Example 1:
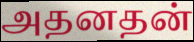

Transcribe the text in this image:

அதனதன்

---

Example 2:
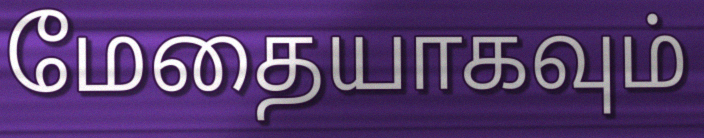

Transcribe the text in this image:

மேதையாகவும்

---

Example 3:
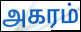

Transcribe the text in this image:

அகரம்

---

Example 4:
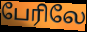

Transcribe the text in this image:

பேரிலே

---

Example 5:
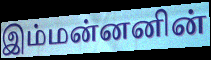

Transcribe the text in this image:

இம்மன்னனின்